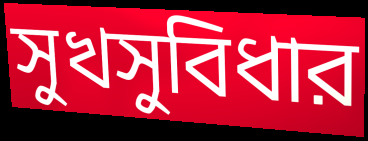
সুখসুবিধার